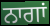
ਨਾਗਾਂ